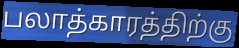
பலாத்காரத்திற்கு